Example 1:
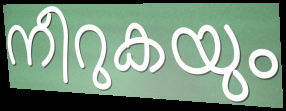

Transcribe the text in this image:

നീറുകയും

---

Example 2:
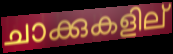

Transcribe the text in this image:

ചാക്കുകളില്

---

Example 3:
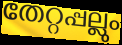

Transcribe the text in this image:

തേറ്റപ്പല്ലും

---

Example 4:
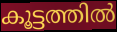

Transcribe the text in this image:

കൂട്ടത്തിൽ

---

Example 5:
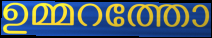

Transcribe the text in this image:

ഉമ്മറത്തോ